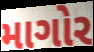
માગોર